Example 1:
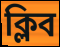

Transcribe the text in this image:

ক্লিব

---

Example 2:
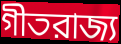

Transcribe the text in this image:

গীতরাজ্য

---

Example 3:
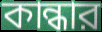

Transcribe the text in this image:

কান্ধার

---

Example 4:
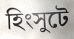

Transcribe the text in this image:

হিংসুটে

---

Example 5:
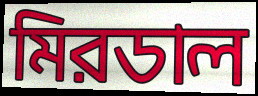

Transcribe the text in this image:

মিরডাল